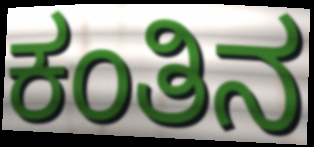
ಕಂತಿನ